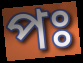
পঃ